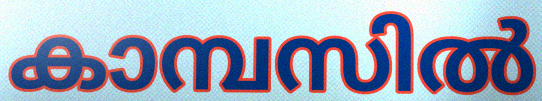
കാമ്പസിൽ